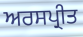
ਅਰਸਪ੍ਰੀਤ